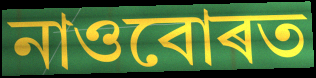
নাওবোৰত